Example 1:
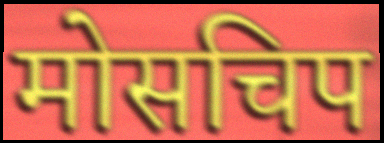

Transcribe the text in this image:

मोसचिप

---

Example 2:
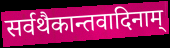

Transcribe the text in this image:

सर्वथैकान्तवादिनाम्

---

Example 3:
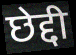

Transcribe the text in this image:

छेद्दी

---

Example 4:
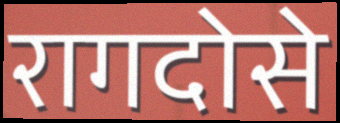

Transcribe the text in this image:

रागदोसे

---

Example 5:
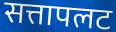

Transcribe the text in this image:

सत्तापलट